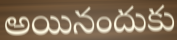
అయినందుకు